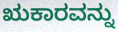
ಋಕಾರವನ್ನು